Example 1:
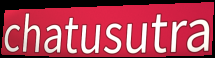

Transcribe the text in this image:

chatusutra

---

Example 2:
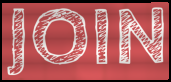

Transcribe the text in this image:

JOIN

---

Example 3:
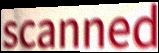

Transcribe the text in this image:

scanned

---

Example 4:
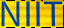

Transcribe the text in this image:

NIIT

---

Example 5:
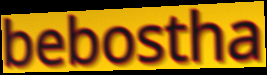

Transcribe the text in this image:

bebostha